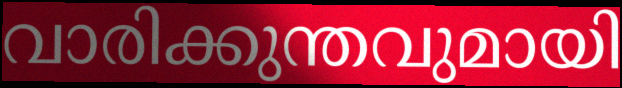
വാരിക്കുന്തവുമായി